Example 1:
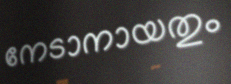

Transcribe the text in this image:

നേടാനായതും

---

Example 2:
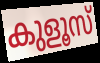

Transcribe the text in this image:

കുളൂസ്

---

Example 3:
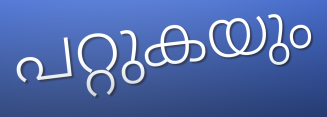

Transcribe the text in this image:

പറ്റുകയും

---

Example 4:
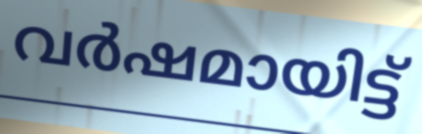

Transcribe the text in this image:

വർഷമായിട്ട്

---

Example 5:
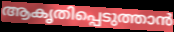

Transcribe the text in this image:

ആകൃതിപ്പെടുത്താൻ